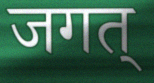
जगत्